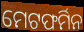
ମେଟଫର୍ମିନ